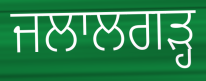
ਜਲਾਲਗੜ੍ਹ